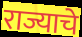
राज्याचे